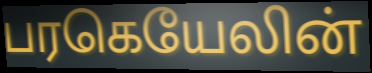
பரகெயேலின்